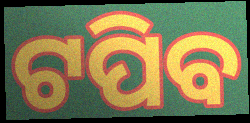
ଟପିବ